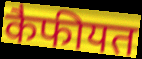
कैफीयत